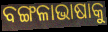
ବଙ୍ଗଳାଭାଷାକୁ